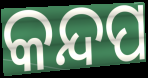
କନ୍ଦପ